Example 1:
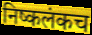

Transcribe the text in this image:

निष्कलंकच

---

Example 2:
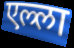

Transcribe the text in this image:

एल्ला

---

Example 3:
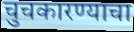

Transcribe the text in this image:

चुचकारण्याचा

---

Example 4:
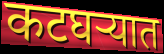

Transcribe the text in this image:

कटघऱ्यात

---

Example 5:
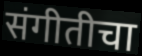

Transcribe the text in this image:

संगीतीचा